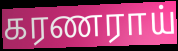
கரணராய்